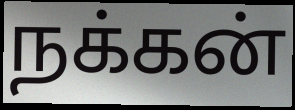
நக்கன்